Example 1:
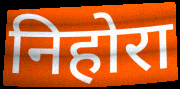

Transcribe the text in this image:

निहोरा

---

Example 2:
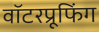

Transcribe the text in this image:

वॉटरप्रूफिंग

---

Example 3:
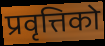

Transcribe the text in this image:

प्रवृत्तिको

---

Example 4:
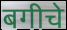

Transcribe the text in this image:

बगीचे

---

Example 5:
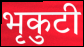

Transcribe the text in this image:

भृकुटी